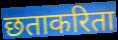
छताकरिता